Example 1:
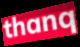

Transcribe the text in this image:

thanq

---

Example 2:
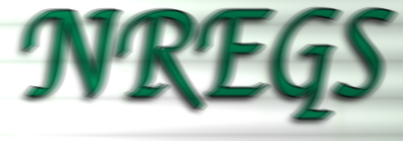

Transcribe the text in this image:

NREGS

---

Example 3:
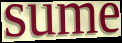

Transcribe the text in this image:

sume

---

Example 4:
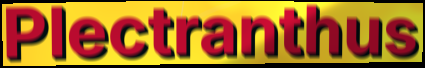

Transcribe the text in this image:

Plectranthus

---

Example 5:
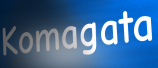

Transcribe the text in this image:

Komagata